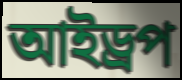
আইড্রপ